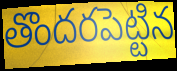
తొందరపెట్టిన